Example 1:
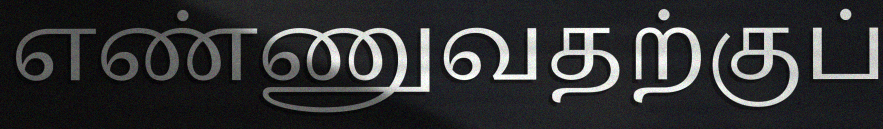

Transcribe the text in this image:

எண்ணுவதற்குப்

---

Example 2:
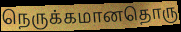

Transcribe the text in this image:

நெருக்கமானதொரு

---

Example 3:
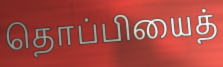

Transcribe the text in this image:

தொப்பியைத்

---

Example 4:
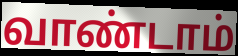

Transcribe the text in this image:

வாண்டாம்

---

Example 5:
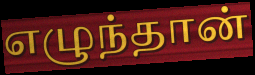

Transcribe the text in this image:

எழுந்தான்